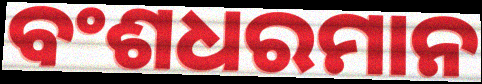
ବଂଶଧରମାନ